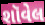
શૉવેલ